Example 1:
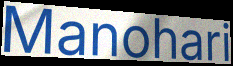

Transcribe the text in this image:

Manohari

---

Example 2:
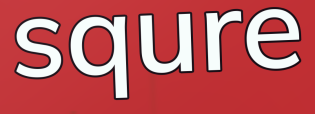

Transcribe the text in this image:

squre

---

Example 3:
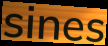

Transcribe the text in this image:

sines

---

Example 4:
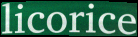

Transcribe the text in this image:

licorice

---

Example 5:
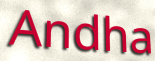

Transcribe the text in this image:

Andha